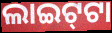
ଲାଇଟ୍‍ଟା